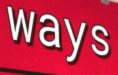
ways